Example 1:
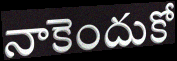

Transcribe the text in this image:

నాకెందుకో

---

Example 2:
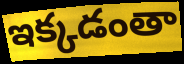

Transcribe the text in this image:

ఇక్కడంతా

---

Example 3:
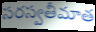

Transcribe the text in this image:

సరస్వతీమాత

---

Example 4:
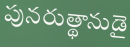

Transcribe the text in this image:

పునరుత్థానుడై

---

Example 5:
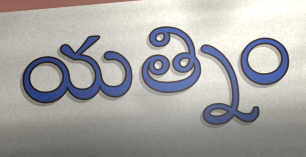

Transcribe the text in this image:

యత్నిం